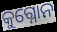
କୁଗ୍ନୋନ